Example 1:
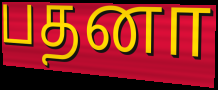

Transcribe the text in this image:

பதனா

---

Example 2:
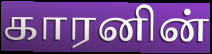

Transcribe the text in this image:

காரனின்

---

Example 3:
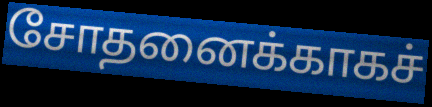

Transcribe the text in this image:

சோதனைக்காகச்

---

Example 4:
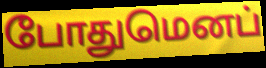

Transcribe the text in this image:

போதுமெனப்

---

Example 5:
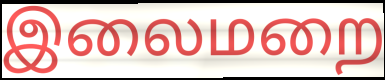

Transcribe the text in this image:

இலைமறை